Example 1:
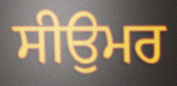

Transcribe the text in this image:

ਸੀਉਮਰ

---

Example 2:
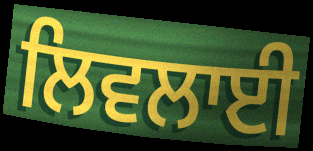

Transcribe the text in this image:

ਲਿਵਲਾਈ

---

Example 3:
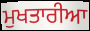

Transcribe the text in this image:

ਮੁਖਤਾਰੀਆ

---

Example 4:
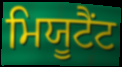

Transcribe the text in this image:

ਮਿਯੂਟੈਂਟ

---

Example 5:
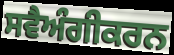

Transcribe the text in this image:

ਸਵੈਅੰਗੀਕਰਨ